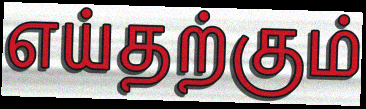
எய்தற்கும்